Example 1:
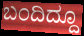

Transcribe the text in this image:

ಬಂದಿದ್ದೂ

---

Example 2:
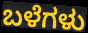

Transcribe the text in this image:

ಬಳೆಗಳು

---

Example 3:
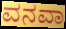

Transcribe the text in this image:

ವನವಾ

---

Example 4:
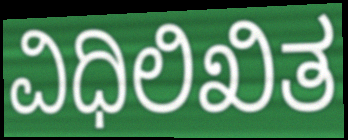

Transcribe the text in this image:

ವಿಧಿಲಿಖಿತ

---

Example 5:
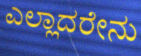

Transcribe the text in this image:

ಎಲ್ಲಾದರೇನು